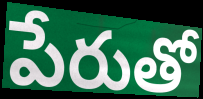
పేరుతో